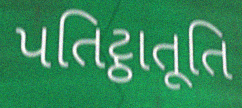
પતિટ્ઠાતૂતિ